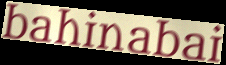
bahinabai